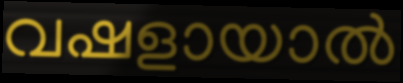
വഷളായാൽ